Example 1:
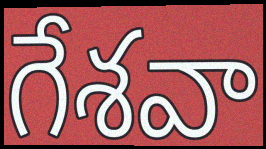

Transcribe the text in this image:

గేశవా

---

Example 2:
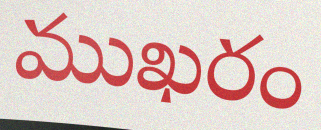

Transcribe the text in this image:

ముఖరం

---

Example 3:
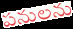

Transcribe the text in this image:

పనులను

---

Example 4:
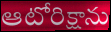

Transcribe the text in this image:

ఆటోరిక్షాను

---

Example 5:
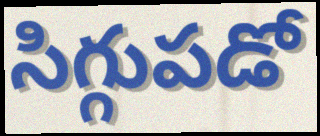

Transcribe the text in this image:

సిగ్గుపడో